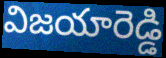
విజయారెడ్డి